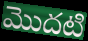
మొదటి